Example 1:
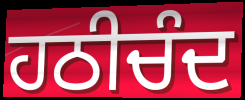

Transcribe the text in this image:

ਹਠੀਚੰਦ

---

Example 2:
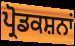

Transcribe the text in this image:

ਪ੍ਰੋਡਕਸ਼ਨਾਂ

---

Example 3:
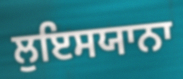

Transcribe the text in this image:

ਲੁਇਸਯਾਨਾ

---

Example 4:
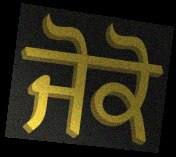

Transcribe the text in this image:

ਜੋਕੋ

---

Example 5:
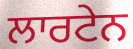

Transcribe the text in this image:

ਲਾਰਟੇਨ